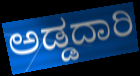
ಅಡ್ಡದಾರಿ